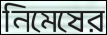
নিমেষের